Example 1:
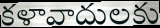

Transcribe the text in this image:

కళావాదులకు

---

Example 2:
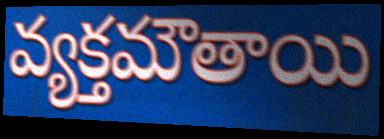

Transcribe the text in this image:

వ్యక్తమౌతాయి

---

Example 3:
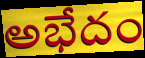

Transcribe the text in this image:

అభేదం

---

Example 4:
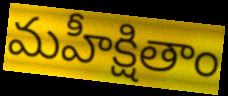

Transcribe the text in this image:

మహీక్షితాం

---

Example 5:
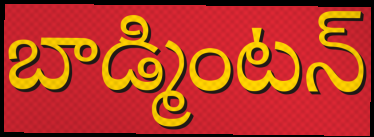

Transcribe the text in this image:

బాడ్మింటన్